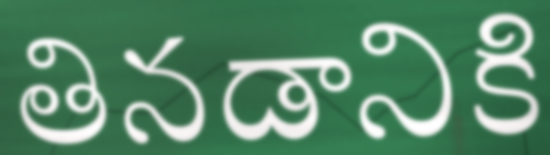
తినడానికి